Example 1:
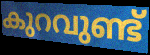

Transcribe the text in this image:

കുറവുണ്ട്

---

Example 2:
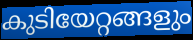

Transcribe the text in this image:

കുടിയേറ്റങ്ങളും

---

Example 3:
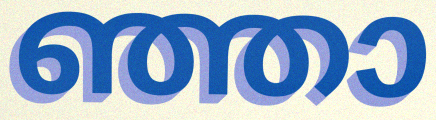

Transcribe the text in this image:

ഞ്ഞാ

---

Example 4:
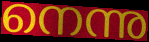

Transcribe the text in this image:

നെന്നു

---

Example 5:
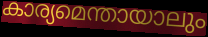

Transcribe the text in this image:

കാര്യമെന്തായാലും